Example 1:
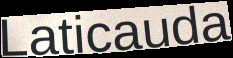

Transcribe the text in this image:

Laticauda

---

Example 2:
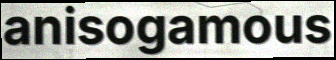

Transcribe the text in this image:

anisogamous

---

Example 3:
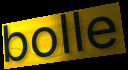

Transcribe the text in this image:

bolle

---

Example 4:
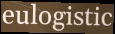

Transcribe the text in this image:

eulogistic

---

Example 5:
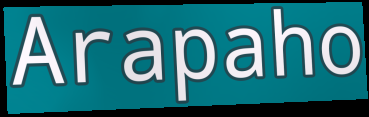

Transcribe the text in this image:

Arapaho